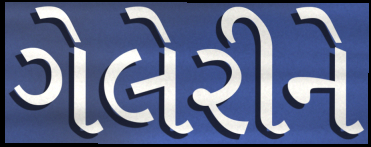
ગેલેરીને